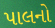
પાલનો